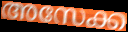
അസേക്ക